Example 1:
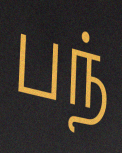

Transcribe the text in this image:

பந்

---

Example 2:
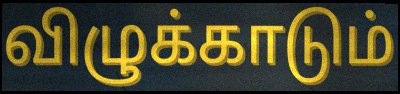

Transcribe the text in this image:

விழுக்காடும்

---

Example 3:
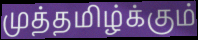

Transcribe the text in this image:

முத்தமிழ்க்கும்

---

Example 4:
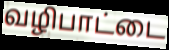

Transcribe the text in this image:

வழிபாட்டை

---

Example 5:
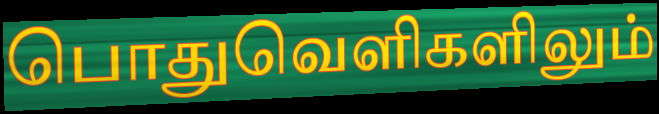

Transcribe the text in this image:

பொதுவெளிகளிலும்